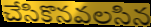
చేసికొనవలసిన